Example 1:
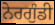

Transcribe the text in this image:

ਨੇਰਗੁੰਡੀ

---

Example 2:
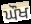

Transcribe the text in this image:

ਘੌਖ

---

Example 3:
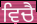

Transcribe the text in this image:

ਵਿਚੈ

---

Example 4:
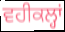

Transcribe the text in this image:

ਵਹੀਕਲ੍ਹਾਂ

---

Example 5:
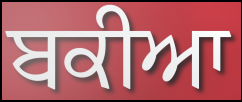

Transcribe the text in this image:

ਬਕੀਆ